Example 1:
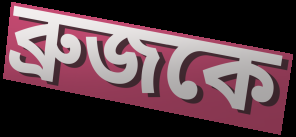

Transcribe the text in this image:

ব্রুজকে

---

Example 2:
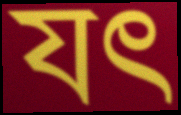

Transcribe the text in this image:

যৎ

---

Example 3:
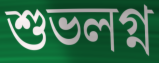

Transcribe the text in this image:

শুভলগ্ন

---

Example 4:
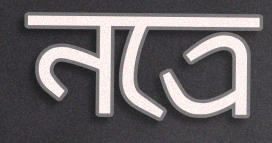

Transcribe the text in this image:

নত্রে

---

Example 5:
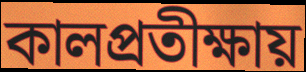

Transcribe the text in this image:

কালপ্রতীক্ষায়